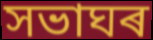
সভাঘৰ